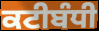
ਕਟੀਬੰਧੀ